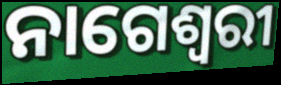
ନାଗେଶ୍ୱରୀ